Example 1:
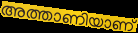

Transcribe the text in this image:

അത്താണിയാണ്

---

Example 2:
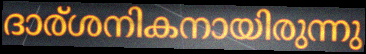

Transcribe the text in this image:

ദാര്ശനികനായിരുന്നു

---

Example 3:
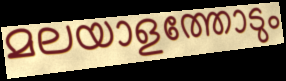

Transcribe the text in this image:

മലയാളത്തോടും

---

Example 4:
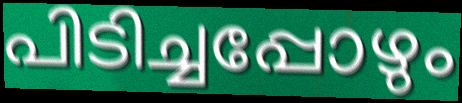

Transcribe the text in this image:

പിടിച്ചപ്പോഴും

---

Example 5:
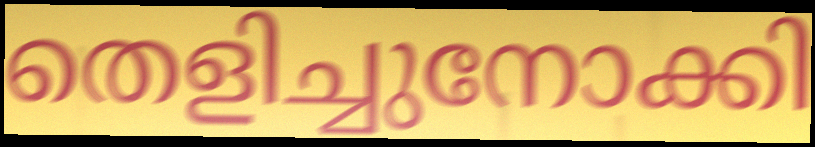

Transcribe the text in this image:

തെളിച്ചുനോക്കി